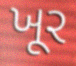
ખૂર